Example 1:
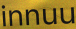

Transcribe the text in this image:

innuu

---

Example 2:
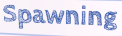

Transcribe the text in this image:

Spawning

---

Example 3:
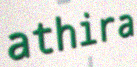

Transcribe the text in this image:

athira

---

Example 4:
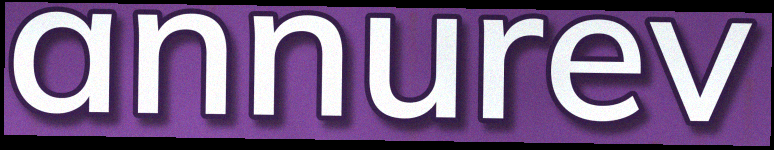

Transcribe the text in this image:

annurev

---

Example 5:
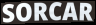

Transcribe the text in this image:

SORCAR